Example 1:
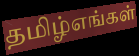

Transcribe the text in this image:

தமிழ்எங்கள்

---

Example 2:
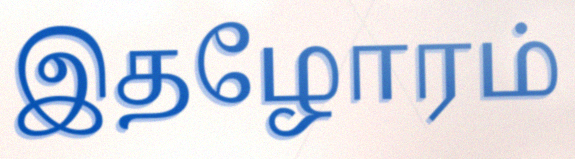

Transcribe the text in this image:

இதழோரம்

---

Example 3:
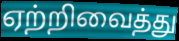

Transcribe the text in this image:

ஏற்றிவைத்து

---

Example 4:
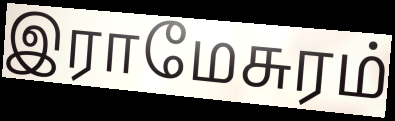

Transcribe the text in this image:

இராமேசுரம்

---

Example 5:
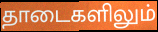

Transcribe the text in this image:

தாடைகளிலும்